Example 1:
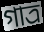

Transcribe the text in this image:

গাত্র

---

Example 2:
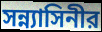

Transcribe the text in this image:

সন্ন্যাসিনীর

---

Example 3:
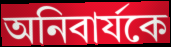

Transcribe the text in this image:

অনিবার্যকে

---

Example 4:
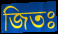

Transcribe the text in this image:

জিতঃ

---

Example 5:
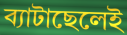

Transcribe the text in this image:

ব্যাটাছেলেই